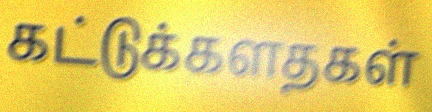
கட்டுக்களதகள்